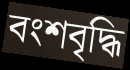
বংশবৃদ্ধি